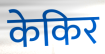
केकिर